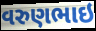
વરુણભાઇ